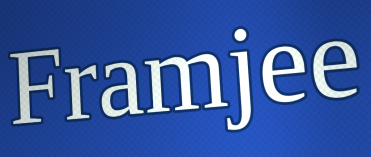
Framjee